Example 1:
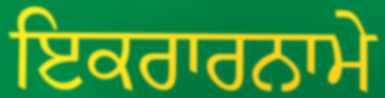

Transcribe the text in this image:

ਇਕਰਾਰਨਾਮੇ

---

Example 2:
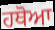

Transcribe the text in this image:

ਹਥੋਆ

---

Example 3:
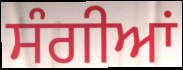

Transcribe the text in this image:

ਸੰਗੀਆਂ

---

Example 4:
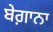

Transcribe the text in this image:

ਬੇਗ਼ਾਨਾ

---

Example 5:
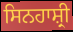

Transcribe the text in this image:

ਸਿਨਹਾਸ਼੍ਰੀ